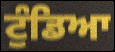
ਟੁੰਡਿਆ